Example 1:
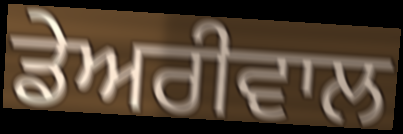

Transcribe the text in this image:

ਡੇਅਰੀਵਾਲ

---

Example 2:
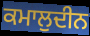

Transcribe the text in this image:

ਕਮਾਲੁਦੀਨ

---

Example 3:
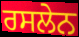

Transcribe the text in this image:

ਰਸਲੇਨ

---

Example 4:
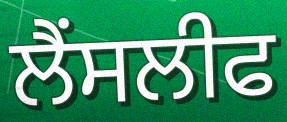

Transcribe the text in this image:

ਲੈਂਸਲੀਫ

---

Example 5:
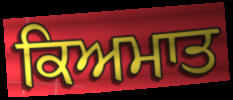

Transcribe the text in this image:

ਕਿਅਮਾਤ